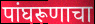
पांघरूणाचा